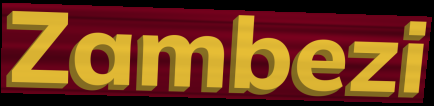
Zambezi